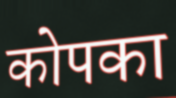
कोपका